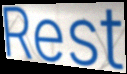
Rest